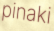
pinaki